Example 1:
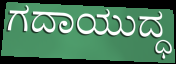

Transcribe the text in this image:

ಗದಾಯುದ್ಧ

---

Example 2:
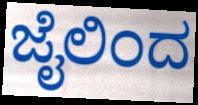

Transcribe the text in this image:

ಜೈಲಿಂದ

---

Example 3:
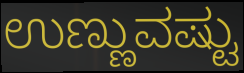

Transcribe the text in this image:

ಉಣ್ಣುವಷ್ಟು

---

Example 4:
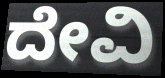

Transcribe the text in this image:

ದೇವಿ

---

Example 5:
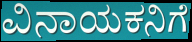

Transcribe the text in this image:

ವಿನಾಯಕನಿಗೆ